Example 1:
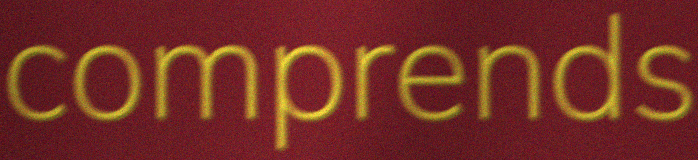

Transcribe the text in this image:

comprends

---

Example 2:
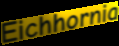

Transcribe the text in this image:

Eichhornia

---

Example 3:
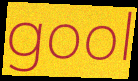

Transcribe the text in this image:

gool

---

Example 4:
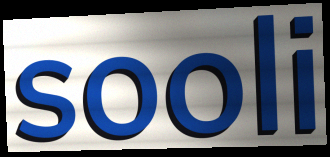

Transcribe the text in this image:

sooli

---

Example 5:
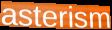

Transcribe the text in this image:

asterism